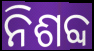
ନିଶବ୍ଦ